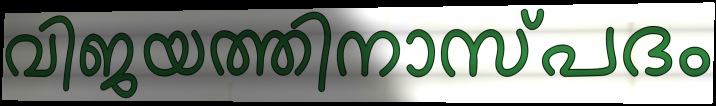
വിജയത്തിനാസ്പദം